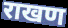
राखण